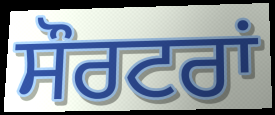
ਸੌਰਟਰਾਂ